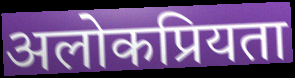
अलोकप्रियता